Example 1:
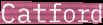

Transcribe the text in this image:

Catford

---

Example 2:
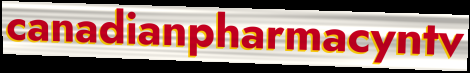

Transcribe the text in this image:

canadianpharmacyntv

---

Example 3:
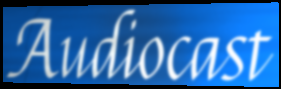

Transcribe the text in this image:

Audiocast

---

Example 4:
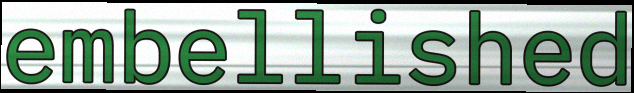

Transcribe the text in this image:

embellished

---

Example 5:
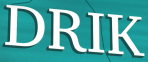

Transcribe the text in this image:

DRIK